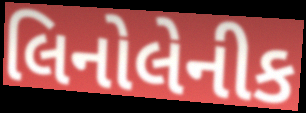
લિનોલેનીક